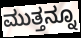
ಮುತ್ತನ್ನೂ